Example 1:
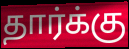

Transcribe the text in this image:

தார்க்கு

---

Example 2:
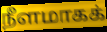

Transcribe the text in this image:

நீளமாகக்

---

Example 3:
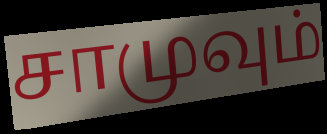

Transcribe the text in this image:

சாமுவும்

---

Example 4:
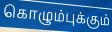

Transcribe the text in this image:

கொழும்புக்கும்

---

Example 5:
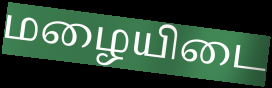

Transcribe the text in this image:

மழையிடை